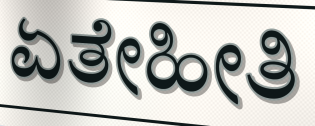
ಏತೇಹೀತಿ